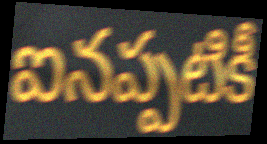
ఐనప్పటికీ